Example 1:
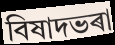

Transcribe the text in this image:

বিষাদভৰা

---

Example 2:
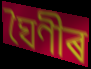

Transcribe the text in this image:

ঘৈণীৰ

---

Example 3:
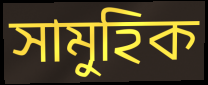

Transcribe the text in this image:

সামুহিক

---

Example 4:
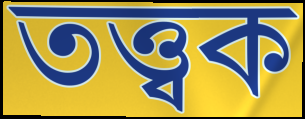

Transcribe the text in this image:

তত্ত্বক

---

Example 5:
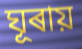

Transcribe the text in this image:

ঘূৰায়